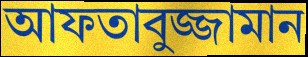
আফতাবুজ্জামান